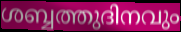
ശബ്ബത്തുദിനവും